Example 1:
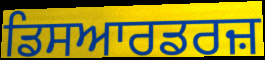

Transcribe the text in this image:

ਡਿਸਆਰਡਰਜ਼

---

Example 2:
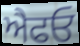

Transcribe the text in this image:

ਐਫਓ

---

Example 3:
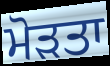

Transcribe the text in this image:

ਮੋੜਤਾ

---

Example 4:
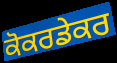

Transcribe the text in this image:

ਕੋਕਰਡੇਕਰ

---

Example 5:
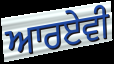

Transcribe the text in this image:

ਆਰਏਵੀ